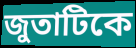
জুতাটিকে